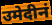
उमेदीनं